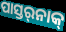
ପାସ୍ତର୍‍ନାକ୍